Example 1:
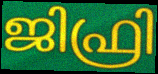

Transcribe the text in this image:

ജിഫ്രി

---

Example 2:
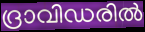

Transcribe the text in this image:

ദ്രാവിഡരിൽ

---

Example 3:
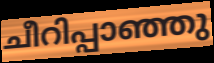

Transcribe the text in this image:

ചീറിപ്പാഞ്ഞു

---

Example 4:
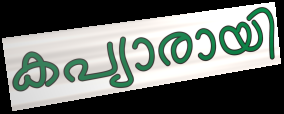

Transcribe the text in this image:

കപ്യാരായി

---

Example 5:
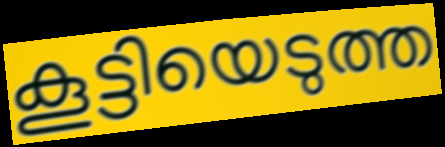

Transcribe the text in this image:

കൂട്ടിയെടുത്ത